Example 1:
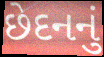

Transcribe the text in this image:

છેદનનું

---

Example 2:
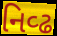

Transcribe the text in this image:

નિવ્ઢ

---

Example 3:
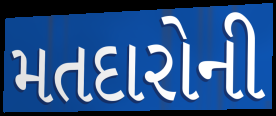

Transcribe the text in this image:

મતદારોની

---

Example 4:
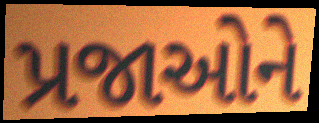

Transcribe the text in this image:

પ્રજાઓને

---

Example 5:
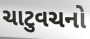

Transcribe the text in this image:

ચાટુવચનો